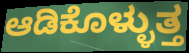
ಆಡಿಕೊಳ್ಳುತ್ತ